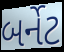
બર્નેટ